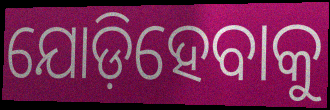
ଯୋଡ଼ିହେବାକୁ